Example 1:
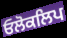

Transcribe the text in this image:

ਓਲੋਕਲਿਪ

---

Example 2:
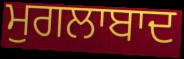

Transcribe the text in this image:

ਮੁਗਲਾਬਾਦ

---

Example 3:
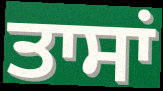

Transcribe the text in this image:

ਤਾਸਾਂ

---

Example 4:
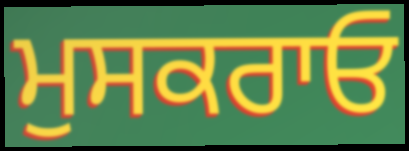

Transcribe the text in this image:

ਮੁਸਕਰਾਓ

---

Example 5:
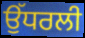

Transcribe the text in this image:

ਉੱਧਰਲੀ